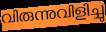
വിരുന്നുവിളിച്ചു